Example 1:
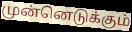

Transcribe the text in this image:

முன்னெடுக்கும்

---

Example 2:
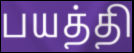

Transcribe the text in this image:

பயத்தி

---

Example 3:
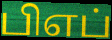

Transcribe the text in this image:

பிஎப்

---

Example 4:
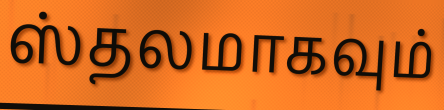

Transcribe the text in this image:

ஸ்தலமாகவும்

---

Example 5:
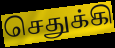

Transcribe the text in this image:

செதுக்கி